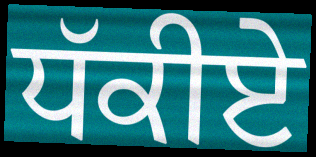
ਧੱਕੀਏ